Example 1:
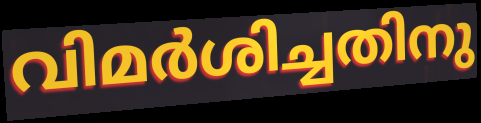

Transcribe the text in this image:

വിമർശിച്ചതിനു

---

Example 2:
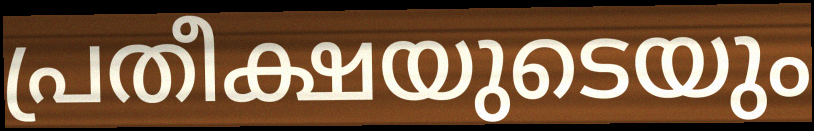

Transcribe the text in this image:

പ്രതീക്ഷയുടെയും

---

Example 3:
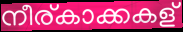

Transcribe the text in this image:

നീര്കാക്കകള്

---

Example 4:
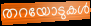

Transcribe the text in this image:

തറയോടുകൾ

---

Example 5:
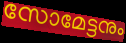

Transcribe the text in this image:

സോമേട്ടനും